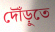
দৌঁড়ুতে